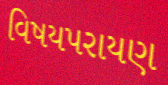
વિષયપરાયણ